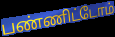
பண்ணிட்டோம்